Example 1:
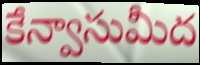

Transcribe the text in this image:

కేన్వాసుమీద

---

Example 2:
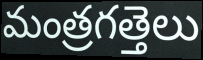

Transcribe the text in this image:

మంత్రగత్తెలు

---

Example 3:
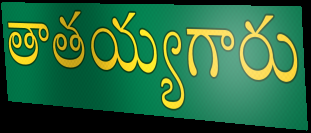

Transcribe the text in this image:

తాతయ్యగారు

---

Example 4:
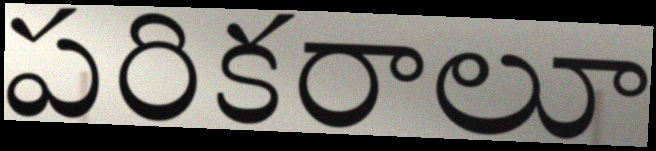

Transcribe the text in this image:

పరికరాలూ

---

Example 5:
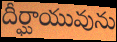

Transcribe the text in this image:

దీర్ఘాయువును